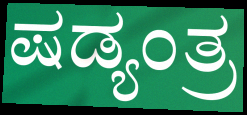
ಷಡ್ಯಂತ್ರ